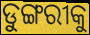
ଡୁଙ୍ଗରୀକୁ